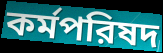
কর্মপরিষদ